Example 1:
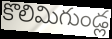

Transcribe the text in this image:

కొలిమిగుండ్ల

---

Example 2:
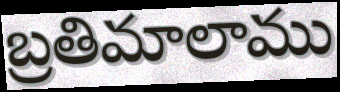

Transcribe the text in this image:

బ్రతిమాలాము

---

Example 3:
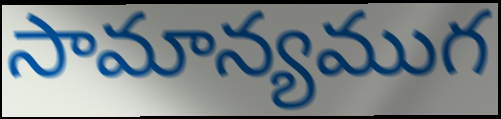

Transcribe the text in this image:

సామాన్యముగ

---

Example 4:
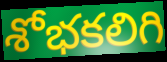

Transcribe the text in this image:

శోభకలిగి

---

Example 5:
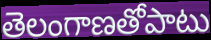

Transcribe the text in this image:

తెలంగాణతోపాటు